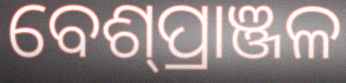
ବେଶ୍‌ପ୍ରାଞ୍ଜଳ